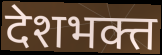
देशभक्त